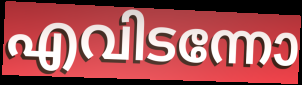
എവിടന്നോ